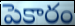
పెకారం